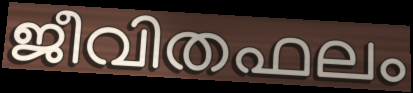
ജീവിതഫലം